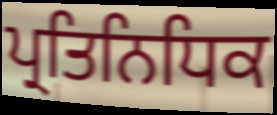
ਪ੍ਰਤਿਨਿਧਿਕ